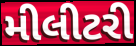
મીલીટરી